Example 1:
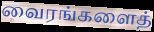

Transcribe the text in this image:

வைரங்களைத்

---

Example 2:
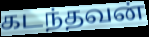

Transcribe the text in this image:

கடந்தவன்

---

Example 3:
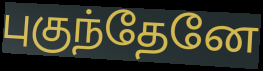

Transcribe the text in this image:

புகுந்தேனே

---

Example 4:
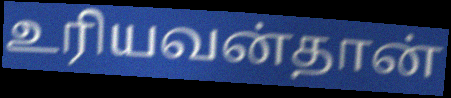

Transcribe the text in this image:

உரியவன்தான்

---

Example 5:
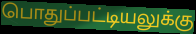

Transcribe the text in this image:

பொதுப்பட்டியலுக்கு